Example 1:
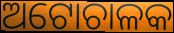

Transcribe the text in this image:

ଅଟୋଚାଳକ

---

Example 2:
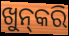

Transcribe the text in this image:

ଖୁନ୍‍କରି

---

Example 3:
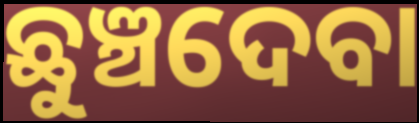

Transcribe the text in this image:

ଛୁଞ୍ଚଦେବା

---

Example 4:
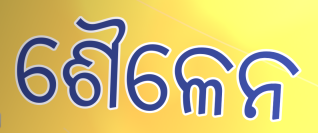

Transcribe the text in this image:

ଶୈଳେନ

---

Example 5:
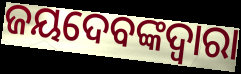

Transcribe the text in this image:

ଜୟଦେବଙ୍କଦ୍ୱାରା